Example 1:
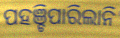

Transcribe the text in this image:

ପହଞ୍ଚିପାରିଲାନି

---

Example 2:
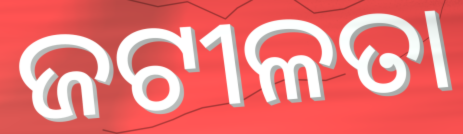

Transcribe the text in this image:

ଜଟୀଳତା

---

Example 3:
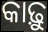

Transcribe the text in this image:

କାଢ଼ୁ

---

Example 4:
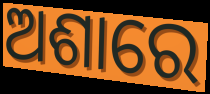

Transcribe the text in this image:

ଅଶାରେ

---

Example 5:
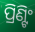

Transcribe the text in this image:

ପ୍ରିଣ୍ଟିଂ